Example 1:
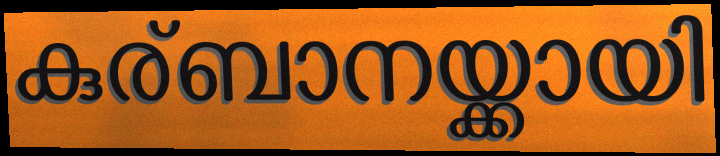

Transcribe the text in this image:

കുര്ബാനയ്ക്കായി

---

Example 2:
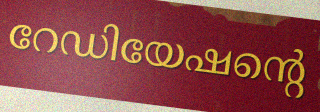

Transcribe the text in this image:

റേഡിയേഷന്റെ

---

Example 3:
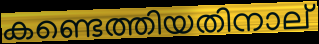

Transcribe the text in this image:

കണ്ടെത്തിയതിനാല്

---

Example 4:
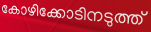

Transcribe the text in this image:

കോഴിക്കോടിനടുത്ത്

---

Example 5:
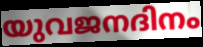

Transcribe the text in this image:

യുവജനദിനം